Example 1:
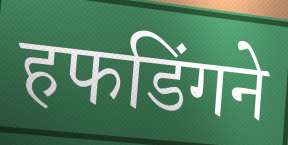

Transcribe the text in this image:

हफडिंगने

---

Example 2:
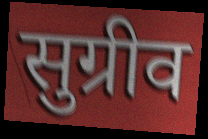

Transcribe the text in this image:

सुग्रीव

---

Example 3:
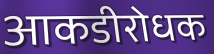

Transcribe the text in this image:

आकडीरोधक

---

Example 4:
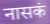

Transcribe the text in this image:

नासकं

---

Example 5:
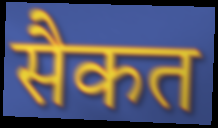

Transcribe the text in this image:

सैकत